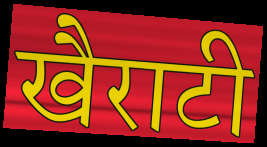
खैराटी